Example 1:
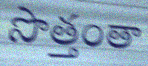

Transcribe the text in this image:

సొత్తంతా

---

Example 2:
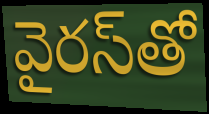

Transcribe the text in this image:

వైరస్‌తో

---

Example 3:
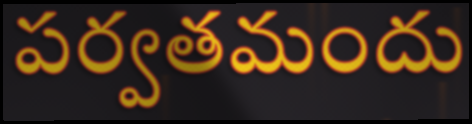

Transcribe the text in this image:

పర్వతమందు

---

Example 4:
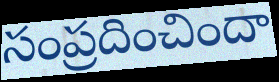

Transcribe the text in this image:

సంప్రదించిందా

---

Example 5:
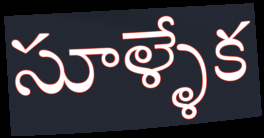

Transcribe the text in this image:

సూళ్ళేక